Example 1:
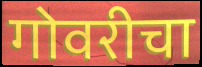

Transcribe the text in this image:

गोवरीचा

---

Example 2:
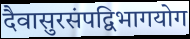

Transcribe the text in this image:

दैवासुरसंपद्विभागयोग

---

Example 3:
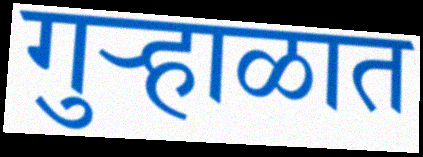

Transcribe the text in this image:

गुऱ्हाळात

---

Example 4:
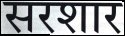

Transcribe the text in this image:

सरशार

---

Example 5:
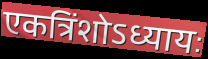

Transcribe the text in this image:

एकत्रिंशोऽध्यायः